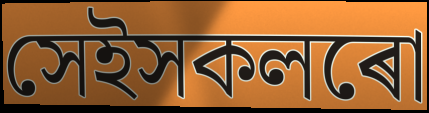
সেইসকলৰো